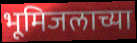
भूमिजलाच्या